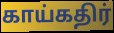
காய்கதிர்